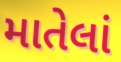
માતેલાં